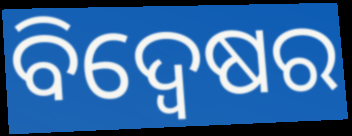
ବିଦ୍ୱେଷର